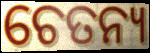
ଚେତନ୍ୟ